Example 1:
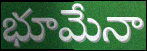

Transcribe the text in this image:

భూమేనా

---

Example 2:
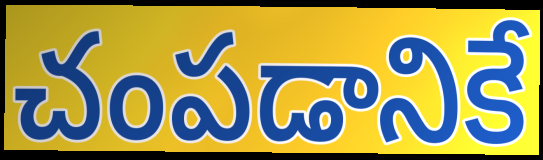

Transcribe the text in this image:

చంపడానికే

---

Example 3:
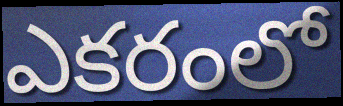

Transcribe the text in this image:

ఎకరంలో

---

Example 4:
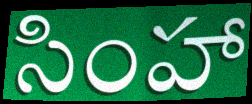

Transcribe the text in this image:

సింహా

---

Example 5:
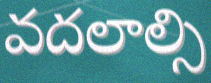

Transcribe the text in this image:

వదలాల్సి